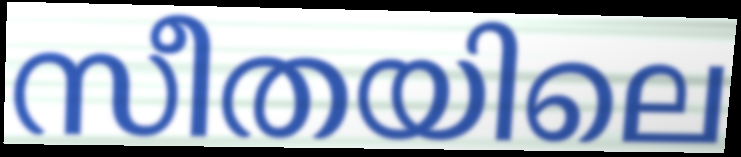
സീതയിലെ